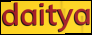
daitya